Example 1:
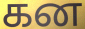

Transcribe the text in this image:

கன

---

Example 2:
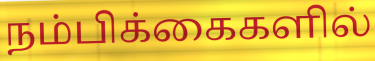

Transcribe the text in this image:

நம்பிக்கைகளில்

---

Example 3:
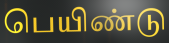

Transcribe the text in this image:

பெயிண்டு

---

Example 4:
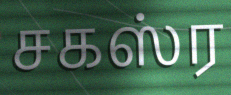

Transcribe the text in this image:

சகஸ்ர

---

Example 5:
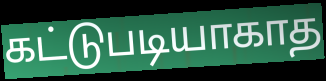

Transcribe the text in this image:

கட்டுபடியாகாத